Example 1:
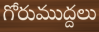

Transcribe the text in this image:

గోరుముద్దలు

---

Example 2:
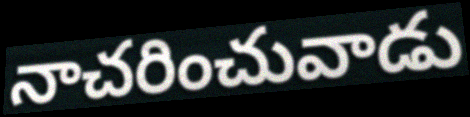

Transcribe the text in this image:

నాచరించువాడు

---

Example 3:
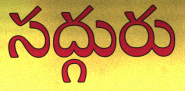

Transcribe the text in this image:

సద్గురు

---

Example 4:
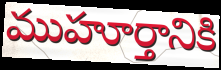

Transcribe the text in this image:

ముహూర్తానికి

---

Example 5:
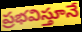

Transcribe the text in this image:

ప్రభవిస్తూనే